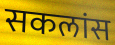
सकलांस